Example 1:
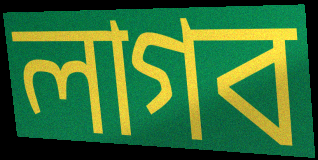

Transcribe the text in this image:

লাগব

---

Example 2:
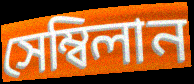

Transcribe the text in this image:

সেম্বিলান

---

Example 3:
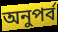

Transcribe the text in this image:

অনুপর্ব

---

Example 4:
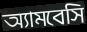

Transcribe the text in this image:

অ্যামবেসি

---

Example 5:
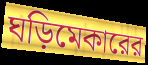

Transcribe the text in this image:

ঘড়িমেকারের